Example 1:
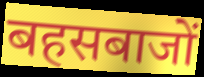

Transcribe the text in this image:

बहसबाजों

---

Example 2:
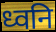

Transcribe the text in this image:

ध्‍वनि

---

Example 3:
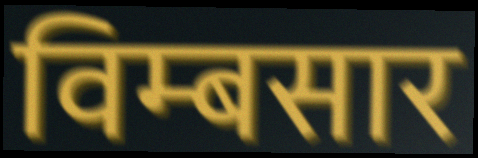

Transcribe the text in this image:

विम्बसार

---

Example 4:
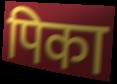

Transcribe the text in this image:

पिका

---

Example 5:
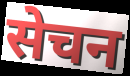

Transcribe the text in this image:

सेचन